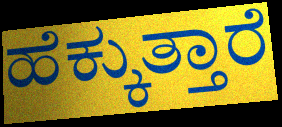
ಹೆಕ್ಕುತ್ತಾರೆ